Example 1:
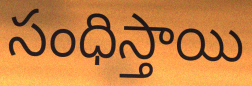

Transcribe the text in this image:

సంధిస్తాయి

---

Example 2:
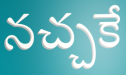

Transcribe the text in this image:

నచ్చకే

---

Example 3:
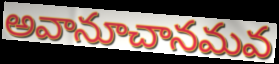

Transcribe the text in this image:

అవానూచానమవ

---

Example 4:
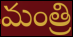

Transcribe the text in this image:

మంత్రి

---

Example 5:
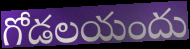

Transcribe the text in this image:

గోడలయందు